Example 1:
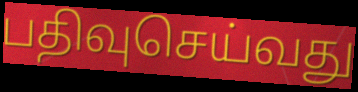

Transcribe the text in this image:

பதிவுசெய்வது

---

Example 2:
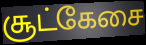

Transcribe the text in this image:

சூட்கேசை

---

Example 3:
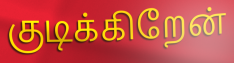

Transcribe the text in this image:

குடிக்கிறேன்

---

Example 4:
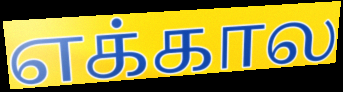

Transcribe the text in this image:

எக்கால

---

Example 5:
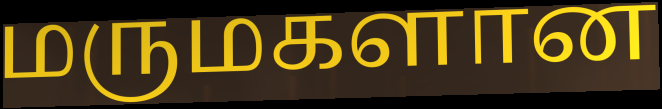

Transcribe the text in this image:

மருமகளான